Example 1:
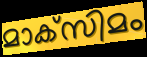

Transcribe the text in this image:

മാക്‌സിമം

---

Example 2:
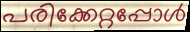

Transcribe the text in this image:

പരിക്കേറ്റപ്പോൾ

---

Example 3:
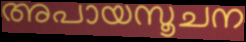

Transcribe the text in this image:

അപായസൂചന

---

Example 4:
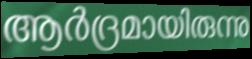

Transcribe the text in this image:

ആർദ്രമായിരുന്നു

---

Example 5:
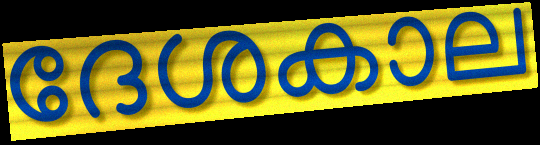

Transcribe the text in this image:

ദേശകാല